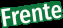
Frente